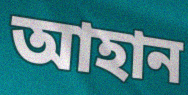
আহান